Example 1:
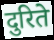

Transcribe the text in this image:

दुरिते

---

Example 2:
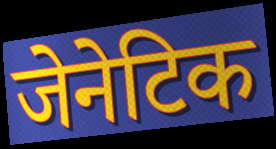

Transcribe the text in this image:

जेनेटिक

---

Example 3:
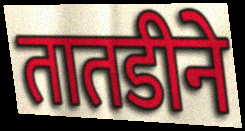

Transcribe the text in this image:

तातडीने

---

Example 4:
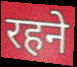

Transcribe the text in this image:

रहने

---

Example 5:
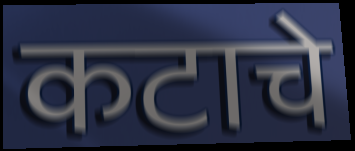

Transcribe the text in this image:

कटाचे